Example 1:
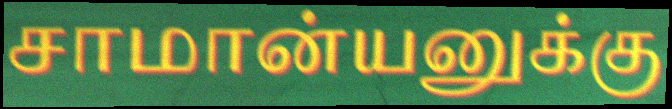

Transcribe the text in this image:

சாமான்யனுக்கு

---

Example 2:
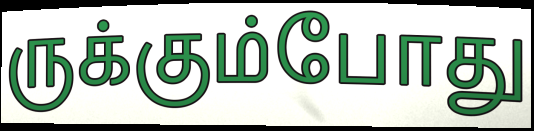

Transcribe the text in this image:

ருக்கும்போது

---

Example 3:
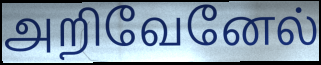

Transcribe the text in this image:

அறிவேனேல்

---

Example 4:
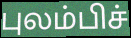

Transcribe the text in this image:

புலம்பிச்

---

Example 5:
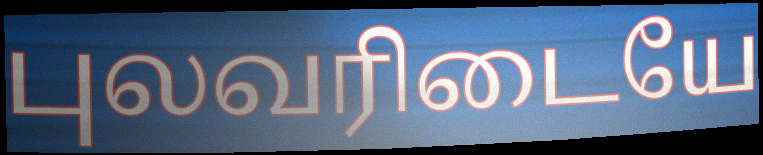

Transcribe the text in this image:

புலவரிடையே